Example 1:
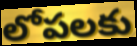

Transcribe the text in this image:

లోపలకు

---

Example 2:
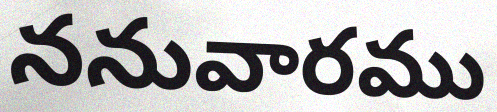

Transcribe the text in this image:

ననువారము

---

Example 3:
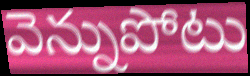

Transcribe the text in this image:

వెన్నుపోటు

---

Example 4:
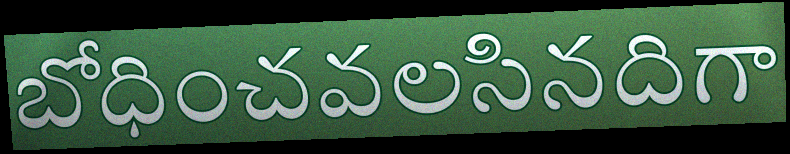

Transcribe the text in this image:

బోధించవలసినదిగా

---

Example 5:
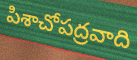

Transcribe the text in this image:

పిశాచోపద్రవాది